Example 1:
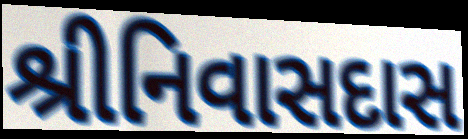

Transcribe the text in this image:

શ્રીનિવાસદાસ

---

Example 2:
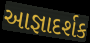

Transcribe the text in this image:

આજ્ઞાદર્શક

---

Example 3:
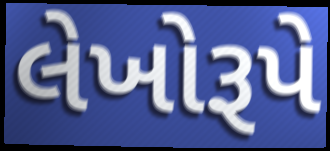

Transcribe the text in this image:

લેખોરૂપે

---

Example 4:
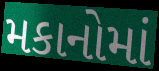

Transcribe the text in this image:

મકાનોમાં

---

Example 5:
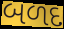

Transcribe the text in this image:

બળદ